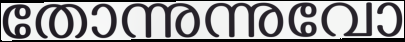
തോന്നുന്നുവോ